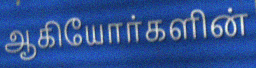
ஆகியோர்களின்